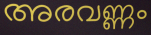
അരവണ്ണം